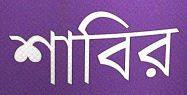
শাবির